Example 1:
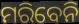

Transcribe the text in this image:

ମରିବେନି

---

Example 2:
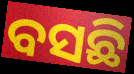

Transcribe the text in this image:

ବସଛି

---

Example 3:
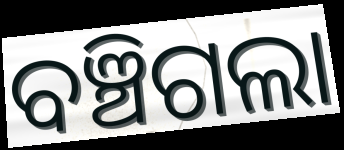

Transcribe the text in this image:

ବଞ୍ଚିଗଲା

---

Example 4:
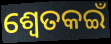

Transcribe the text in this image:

ଶ୍ୱେତକଇଁ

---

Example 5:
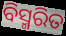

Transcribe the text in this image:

ବିସ୍ମରିତ